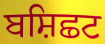
ਬਸ਼ਿਛਟ